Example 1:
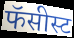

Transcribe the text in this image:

फॅसीस्ट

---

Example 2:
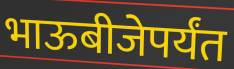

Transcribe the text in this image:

भाऊबीजेपर्यंत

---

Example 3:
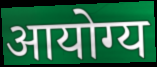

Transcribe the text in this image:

आयोग्य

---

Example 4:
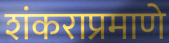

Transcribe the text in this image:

शंकराप्रमाणे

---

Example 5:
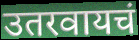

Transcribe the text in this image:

उतरवायचं